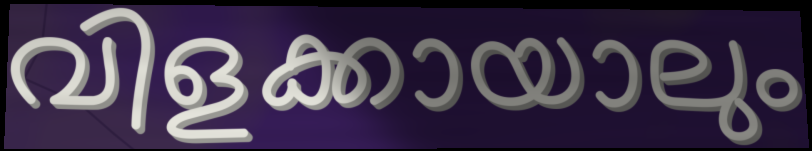
വിളക്കായാലും